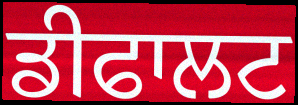
ਡੀਫਾਲਟ